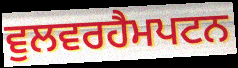
ਵੁਲਵਰਹੈਮਪਟਨ